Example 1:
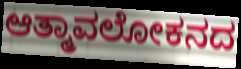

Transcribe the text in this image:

ಆತ್ಮಾವಲೋಕನದ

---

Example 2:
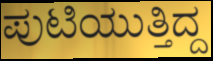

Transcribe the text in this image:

ಪುಟಿಯುತ್ತಿದ್ದ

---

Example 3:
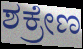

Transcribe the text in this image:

ಶಕ್ರೇಣ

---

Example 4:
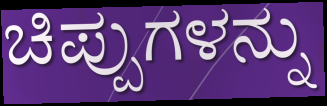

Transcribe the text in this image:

ಚಿಪ್ಪುಗಳನ್ನು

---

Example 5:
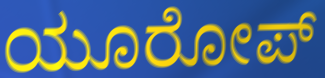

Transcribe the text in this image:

ಯೂರೋಪ್